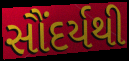
સૌંદર્યથી